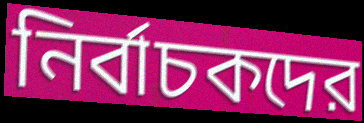
নির্বাচকদের